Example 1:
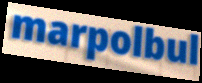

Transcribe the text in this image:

marpolbul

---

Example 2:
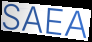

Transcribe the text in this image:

SAEA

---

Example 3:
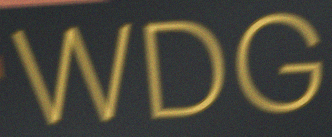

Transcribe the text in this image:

WDG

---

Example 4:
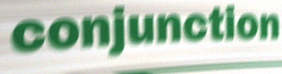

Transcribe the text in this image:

conjunction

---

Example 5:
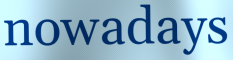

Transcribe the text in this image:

nowadays